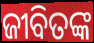
ଜୀବିତଙ୍କ